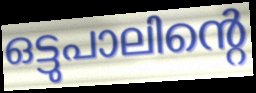
ഒട്ടുപാലിന്റെ